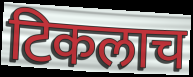
टिकलाच